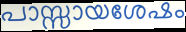
പാസ്സായശേഷം